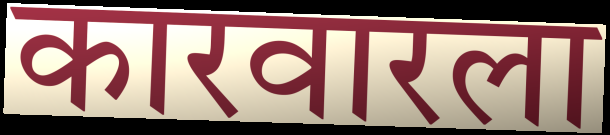
कारवारला